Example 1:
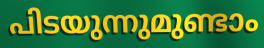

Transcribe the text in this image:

പിടയുന്നുമുണ്ടാം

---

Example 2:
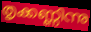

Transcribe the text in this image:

തൃക്കണ്ണിന്നു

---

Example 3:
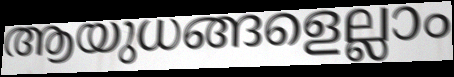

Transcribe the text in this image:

ആയുധങ്ങളെല്ലാം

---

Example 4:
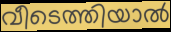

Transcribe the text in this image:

വീടെത്തിയാൽ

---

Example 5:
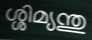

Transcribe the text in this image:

ശ്ശിമ്യന്തു